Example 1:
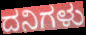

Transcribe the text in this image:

ದನಿಗಳು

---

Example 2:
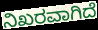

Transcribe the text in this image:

ನಿಖರವಾಗಿದೆ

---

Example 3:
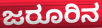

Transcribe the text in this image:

ಜರೂರಿನ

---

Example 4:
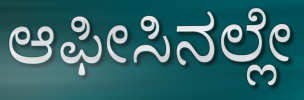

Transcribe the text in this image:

ಆಫೀಸಿನಲ್ಲೇ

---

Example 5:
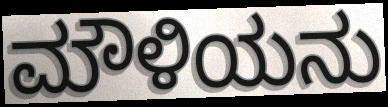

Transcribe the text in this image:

ಮೌಳಿಯನು